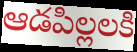
ఆడపిల్లలకి